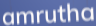
amrutha